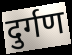
दुर्गण